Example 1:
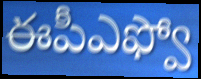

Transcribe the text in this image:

ఈపీఎఫ్వో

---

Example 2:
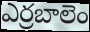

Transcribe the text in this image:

ఎర్రబాలెం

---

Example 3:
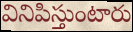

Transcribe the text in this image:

వినిపిస్తుంటారు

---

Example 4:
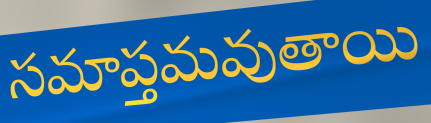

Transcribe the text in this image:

సమాప్తమవుతాయి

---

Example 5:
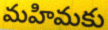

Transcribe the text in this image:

మహిమకు